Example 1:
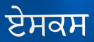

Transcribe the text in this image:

ਏਸਕਸ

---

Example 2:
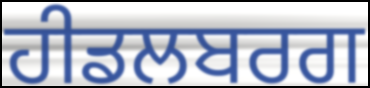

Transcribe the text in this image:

ਹੀਡਲਬਰਗ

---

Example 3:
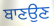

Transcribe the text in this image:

ਬਾਣਉਣ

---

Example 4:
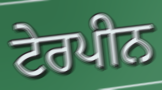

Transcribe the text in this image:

ਟੇਰਪੀਨ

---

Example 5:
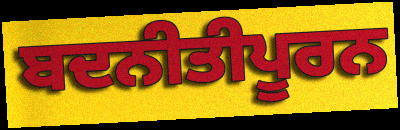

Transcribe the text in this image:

ਬਦਨੀਤੀਪੂਰਨ